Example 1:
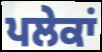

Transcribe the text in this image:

ਪਲੇਕਾਂ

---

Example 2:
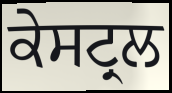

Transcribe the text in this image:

ਕੇਸਟ੍ਰਲ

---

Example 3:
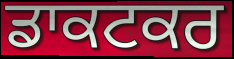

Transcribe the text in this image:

ਡਾਕਟਕਰ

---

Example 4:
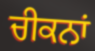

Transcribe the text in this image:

ਚੀਕਨਾਂ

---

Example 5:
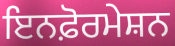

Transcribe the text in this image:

ਇਨਫ਼ੋਰਮੇਸ਼ਨ